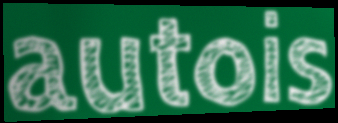
autois